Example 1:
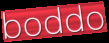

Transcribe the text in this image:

boddo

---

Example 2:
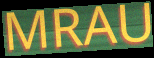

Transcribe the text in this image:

MRAU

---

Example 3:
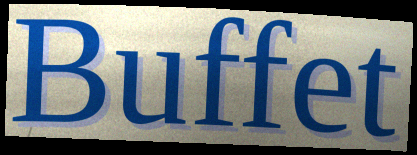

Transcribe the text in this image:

Buffet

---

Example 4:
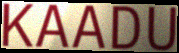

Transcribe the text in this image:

KAADU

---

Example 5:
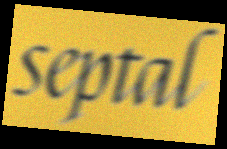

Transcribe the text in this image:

septal